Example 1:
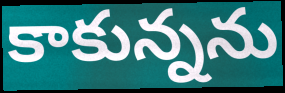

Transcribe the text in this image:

కాకున్నను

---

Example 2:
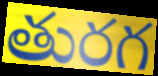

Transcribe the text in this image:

తురగ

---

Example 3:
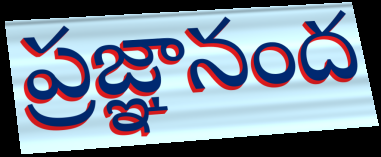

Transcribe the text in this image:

ప్రజ్ఞానంద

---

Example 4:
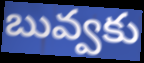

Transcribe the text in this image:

బువ్వకు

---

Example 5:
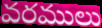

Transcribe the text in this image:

వరములు